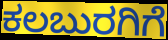
ಕಲಬುರಗಿಗೆ